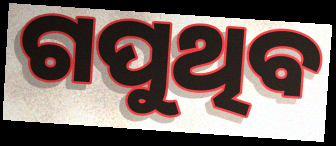
ଗପୁଥିବ